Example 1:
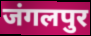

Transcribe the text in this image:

जंगलपुर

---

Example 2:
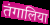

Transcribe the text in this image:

तंगालिया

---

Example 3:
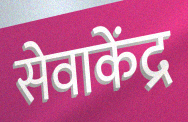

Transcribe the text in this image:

सेवाकेंद्र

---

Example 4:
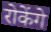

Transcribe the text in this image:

रोकेंगे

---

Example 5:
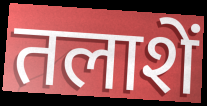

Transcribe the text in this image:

तलाशें